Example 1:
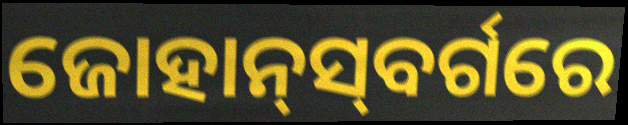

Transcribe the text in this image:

ଜୋହାନ୍‌ସ୍‌ବର୍ଗରେ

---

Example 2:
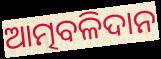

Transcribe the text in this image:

ଆତ୍ମବଳିଦାନ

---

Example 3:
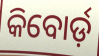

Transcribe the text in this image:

କିବୋର୍ଡ଼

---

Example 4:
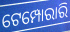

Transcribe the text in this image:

ଟେମ୍ପୋରାରି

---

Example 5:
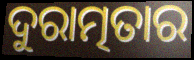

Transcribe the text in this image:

ଦୁରାତ୍ମତାର